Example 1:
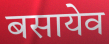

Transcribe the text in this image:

बसायेव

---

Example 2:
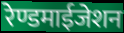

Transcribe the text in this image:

रेण्डमाईजेशन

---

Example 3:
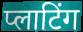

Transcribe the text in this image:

प्लाटिंग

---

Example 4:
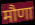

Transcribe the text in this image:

मौणा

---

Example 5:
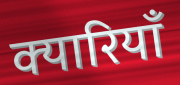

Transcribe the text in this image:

क्यारियाँ